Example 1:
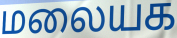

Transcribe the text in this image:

மலையக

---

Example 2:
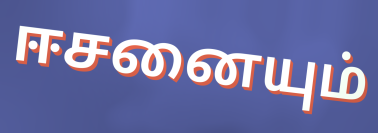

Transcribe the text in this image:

ஈசனையும்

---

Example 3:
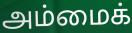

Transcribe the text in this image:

அம்மைக்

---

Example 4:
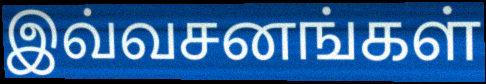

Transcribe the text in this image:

இவ்வசனங்கள்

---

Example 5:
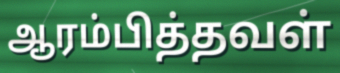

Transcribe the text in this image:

ஆரம்பித்தவள்